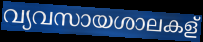
വ്യവസായശാലകള്